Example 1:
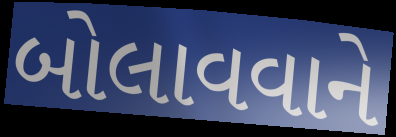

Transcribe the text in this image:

બોલાવવાને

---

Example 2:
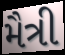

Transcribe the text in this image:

મૈત્રી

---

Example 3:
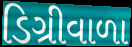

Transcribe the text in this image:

ડિગ્રીવાળા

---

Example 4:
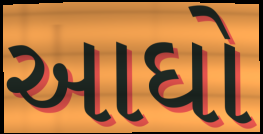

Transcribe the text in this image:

આઘો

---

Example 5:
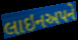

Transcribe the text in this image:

લાઇનઅપને